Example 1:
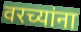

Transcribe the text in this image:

वरच्यांना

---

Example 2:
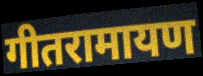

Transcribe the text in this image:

गीतरामायण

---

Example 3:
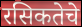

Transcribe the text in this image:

रसिकतेचे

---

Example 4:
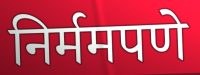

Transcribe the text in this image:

निर्ममपणे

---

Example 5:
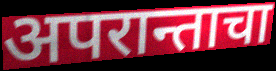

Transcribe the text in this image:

अपरान्ताचा